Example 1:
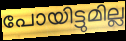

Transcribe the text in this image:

പോയിട്ടുമില്ല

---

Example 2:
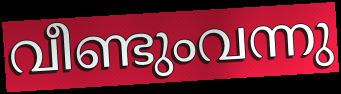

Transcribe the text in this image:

വീണ്ടുംവന്നു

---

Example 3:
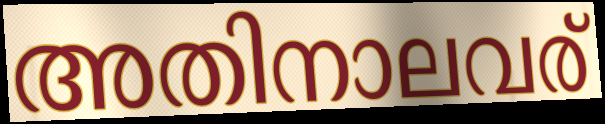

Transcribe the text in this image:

അതിനാലവര്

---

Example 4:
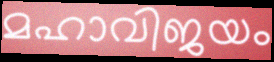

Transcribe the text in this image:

മഹാവിജയം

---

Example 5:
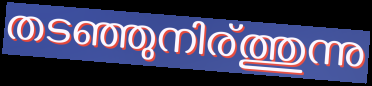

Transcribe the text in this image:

തടഞ്ഞുനിര്ത്തുന്നു